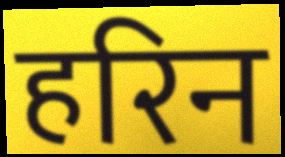
हरिन